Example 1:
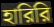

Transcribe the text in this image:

হারিরি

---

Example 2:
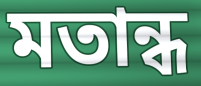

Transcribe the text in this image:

মতান্ধ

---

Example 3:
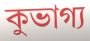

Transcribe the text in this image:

কুভাগ্য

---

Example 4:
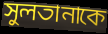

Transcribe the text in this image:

সুলতানাকে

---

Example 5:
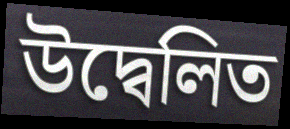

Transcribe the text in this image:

উদ্বেলিত